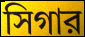
সিগার